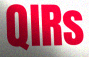
QIRs